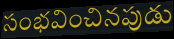
సంభవించినపుడు